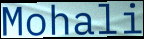
Mohali